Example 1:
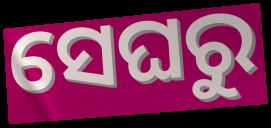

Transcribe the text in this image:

ସେଘରୁ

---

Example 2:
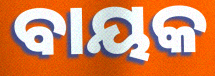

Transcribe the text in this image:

ବାୟକ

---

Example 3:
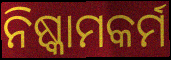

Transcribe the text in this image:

ନିଷ୍କାମକର୍ମ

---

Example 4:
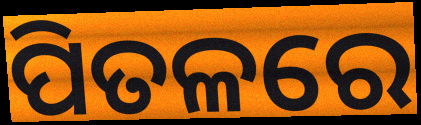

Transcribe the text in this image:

ପିତଳରେ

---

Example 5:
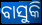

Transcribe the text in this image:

ବାସୁକି